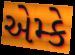
એમ્કે